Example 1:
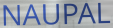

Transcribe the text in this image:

NAUPAL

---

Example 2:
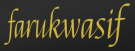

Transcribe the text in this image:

farukwasif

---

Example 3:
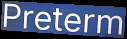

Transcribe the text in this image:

Preterm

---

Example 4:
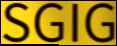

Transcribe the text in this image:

SGIG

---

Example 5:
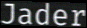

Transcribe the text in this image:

Jader